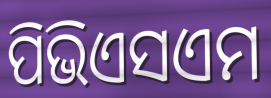
ପିଭିଏସଏମ